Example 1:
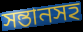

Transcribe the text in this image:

সন্তানসহ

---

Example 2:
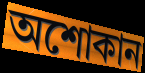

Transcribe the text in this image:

অশোকান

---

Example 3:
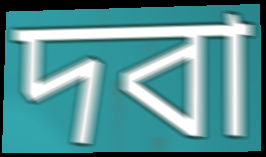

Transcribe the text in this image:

দবা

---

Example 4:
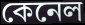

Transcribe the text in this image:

কেনেল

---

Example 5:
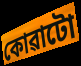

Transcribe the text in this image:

কোৱাটো